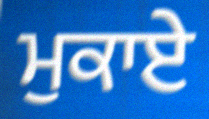
ਮੁਕਾਏ